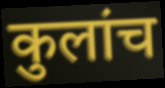
कुलांच